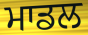
ਮਾਡਲ